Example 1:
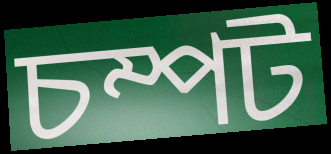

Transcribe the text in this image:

চম্পট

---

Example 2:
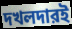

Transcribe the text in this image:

দখলদারই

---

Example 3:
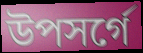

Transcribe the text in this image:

উপসর্গে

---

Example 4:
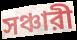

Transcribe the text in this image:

সঞ্চারী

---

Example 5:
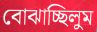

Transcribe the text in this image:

বোঝাচ্ছিলুম